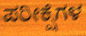
ಪರೀಕ್ಷೆಗಳ